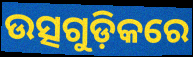
ଉତ୍ସଗୁଡ଼ିକରେ